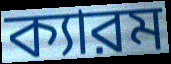
ক্যারম